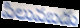
పిలువబడు